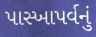
પાસ્ખાપર્વનું